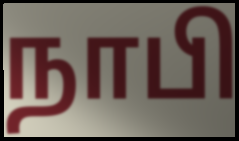
நாபி